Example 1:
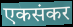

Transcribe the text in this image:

एकसंकर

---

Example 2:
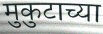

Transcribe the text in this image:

मुकुटाच्या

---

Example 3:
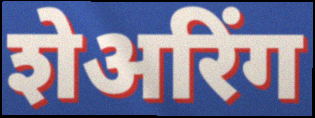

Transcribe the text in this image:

शेअरिंग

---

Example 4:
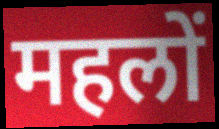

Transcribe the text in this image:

महलों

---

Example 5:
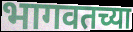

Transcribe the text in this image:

भागवतच्या